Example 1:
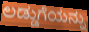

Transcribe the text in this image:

ಲಡ್ಡುಗೆಯನ್ನು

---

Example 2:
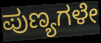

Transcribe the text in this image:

ಪುಣ್ಯಗಳೇ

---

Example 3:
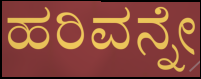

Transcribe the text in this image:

ಹರಿವನ್ನೇ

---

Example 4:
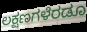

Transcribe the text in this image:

ಲಕ್ಷಣಗಳೆರಡೂ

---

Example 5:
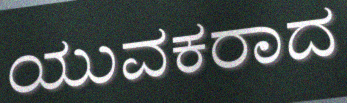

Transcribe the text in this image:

ಯುವಕರಾದ